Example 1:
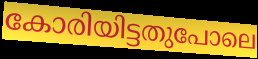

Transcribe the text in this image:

കോരിയിട്ടതുപോലെ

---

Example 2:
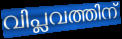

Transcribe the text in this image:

വിപ്ലവത്തിന്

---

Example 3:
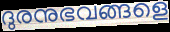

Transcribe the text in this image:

ദുരനുഭവങ്ങളെ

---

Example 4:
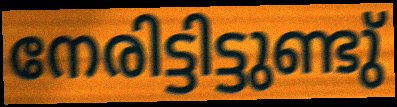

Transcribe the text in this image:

നേരിട്ടിട്ടുണ്ടു്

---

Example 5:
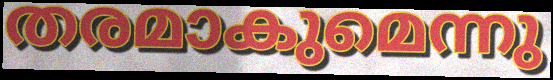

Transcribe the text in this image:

തരമാകുമെന്നു